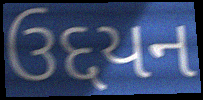
ઉદ્દયન